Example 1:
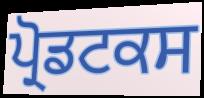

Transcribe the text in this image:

ਪ੍ਰੋਡਟਕਸ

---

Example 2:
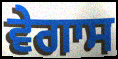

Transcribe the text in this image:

ਵੇਗਾਸ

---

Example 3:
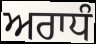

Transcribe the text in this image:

ਅਰਾਧੰ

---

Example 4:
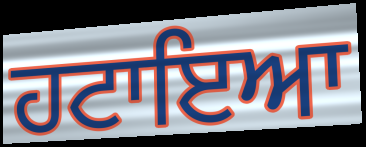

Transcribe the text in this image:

ਹਟਾਇਆ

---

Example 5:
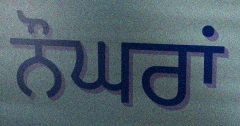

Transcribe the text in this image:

ਨੌਘਰਾਂ